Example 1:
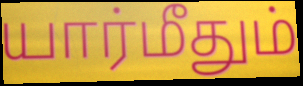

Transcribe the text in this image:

யார்மீதும்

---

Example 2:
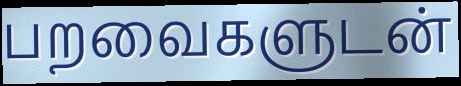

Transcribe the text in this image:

பறவைகளுடன்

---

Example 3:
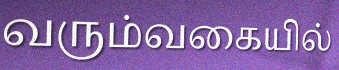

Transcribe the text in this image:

வரும்வகையில்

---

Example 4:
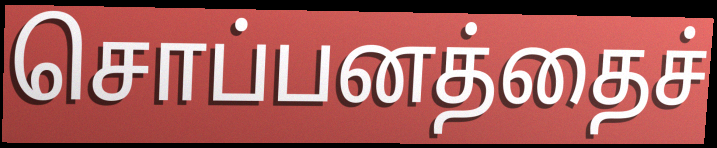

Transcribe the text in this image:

சொப்பனத்தைச்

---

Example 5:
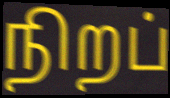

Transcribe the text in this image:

நிறப்